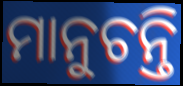
ମାନୁଚନ୍ତି